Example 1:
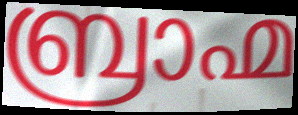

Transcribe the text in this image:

ബ്രാഹ്മ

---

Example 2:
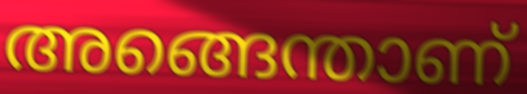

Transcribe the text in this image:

അങ്ങെന്താണ്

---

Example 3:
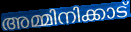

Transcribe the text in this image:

അമ്മിനിക്കാട്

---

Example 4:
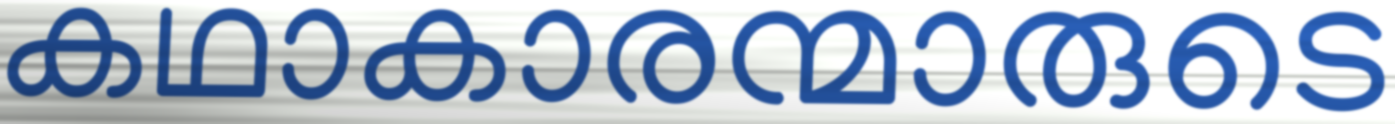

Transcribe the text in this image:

കഥാകാരന്മാരുടെ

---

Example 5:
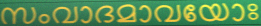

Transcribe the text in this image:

സംവാദമാവയോഃ